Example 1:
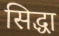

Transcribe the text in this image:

सिद्धा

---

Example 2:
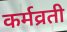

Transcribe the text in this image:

कर्मव्रती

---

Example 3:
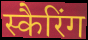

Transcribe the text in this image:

स्कैरिंग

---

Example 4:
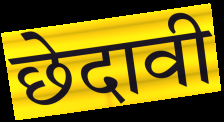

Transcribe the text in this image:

छेदावी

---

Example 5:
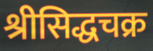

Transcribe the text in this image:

श्रीसिद्धचक्र